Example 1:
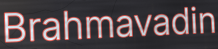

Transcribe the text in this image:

Brahmavadin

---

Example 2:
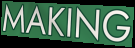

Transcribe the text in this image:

MAKING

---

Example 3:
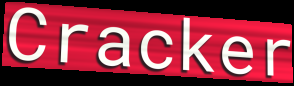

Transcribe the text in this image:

Cracker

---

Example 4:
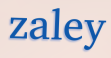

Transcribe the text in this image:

zaley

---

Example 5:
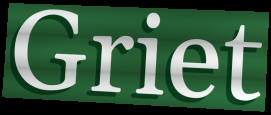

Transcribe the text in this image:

Griet